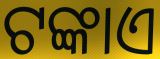
ଟଙ୍କାଏ